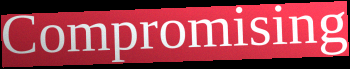
Compromising